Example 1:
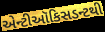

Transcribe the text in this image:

એન્ટીઑકિસડન્ટથી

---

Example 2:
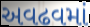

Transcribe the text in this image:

અવઢવમાં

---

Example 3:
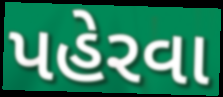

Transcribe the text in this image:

પહેરવા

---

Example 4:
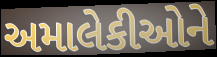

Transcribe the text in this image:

અમાલેકીઓને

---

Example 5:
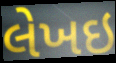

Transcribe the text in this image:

લેખઇ